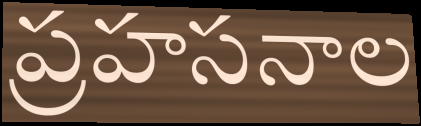
ప్రహసనాల